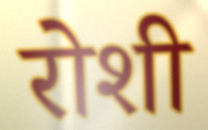
रोशी